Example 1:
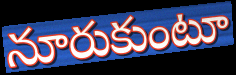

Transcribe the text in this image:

నూరుకుంటూ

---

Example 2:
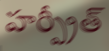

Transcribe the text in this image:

హర్ప్రీత్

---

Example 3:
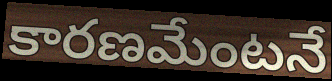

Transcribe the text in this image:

కారణమేంటనే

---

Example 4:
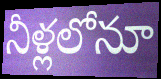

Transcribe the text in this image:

నీళ్లలోనూ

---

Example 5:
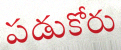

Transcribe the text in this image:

పడుకోరు